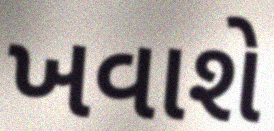
ખવાશે